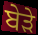
ਬੇੜੇ